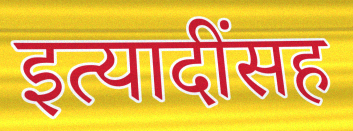
इत्यादींसह